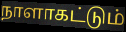
நாளாகட்டும்